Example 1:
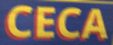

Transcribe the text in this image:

CECA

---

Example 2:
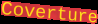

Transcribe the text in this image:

Coverture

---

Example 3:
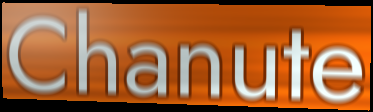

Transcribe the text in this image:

Chanute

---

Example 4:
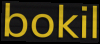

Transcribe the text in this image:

bokil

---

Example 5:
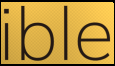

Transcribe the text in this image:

ible